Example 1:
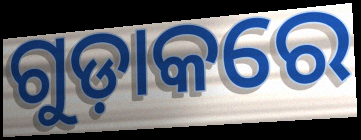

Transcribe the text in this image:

ଗୁଡ଼ାକରେ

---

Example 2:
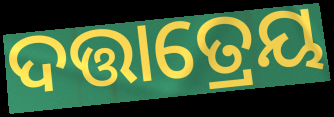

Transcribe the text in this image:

ଦତ୍ତାତ୍ରେୟ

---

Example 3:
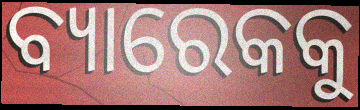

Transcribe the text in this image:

ବ୍ୟାରେକକୁ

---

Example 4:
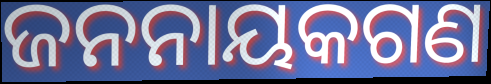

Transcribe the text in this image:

ଜନନାୟକଗଣ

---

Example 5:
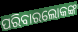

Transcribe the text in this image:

ପରିବାରଲୋକଙ୍କ